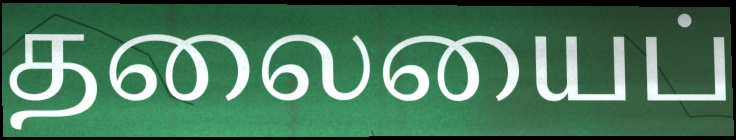
தலையைப்